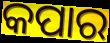
କପାର